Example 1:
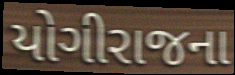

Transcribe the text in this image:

યોગીરાજના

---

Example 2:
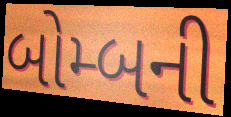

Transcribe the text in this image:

બોમ્બની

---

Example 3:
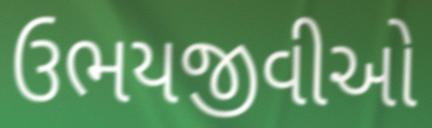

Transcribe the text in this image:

ઉભયજીવીઓ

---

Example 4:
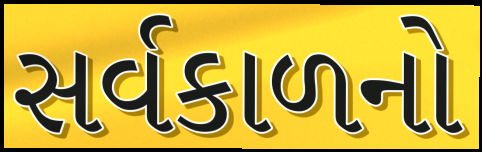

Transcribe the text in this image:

સર્વકાળનો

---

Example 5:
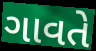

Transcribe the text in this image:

ગાવતે